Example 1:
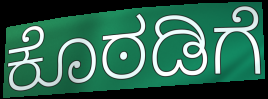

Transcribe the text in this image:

ಕೊಠಡಿಗೆ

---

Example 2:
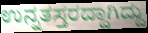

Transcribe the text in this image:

ಉನ್ನತಸ್ತರದ್ದಾಗಿದ್ದು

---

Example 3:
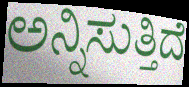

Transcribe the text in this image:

ಅನ್ನಿಸುತ್ತಿದೆ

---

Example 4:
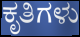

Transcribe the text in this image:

ಕೃತಿಗಳು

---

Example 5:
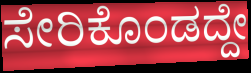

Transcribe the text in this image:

ಸೇರಿಕೊಂಡದ್ದೇ